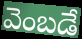
వెంబడే